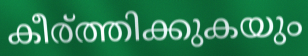
കീര്ത്തിക്കുകയും